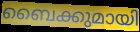
ബൈക്കുമായി